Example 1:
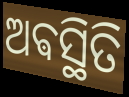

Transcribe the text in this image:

ଅଵସ୍ଥିତି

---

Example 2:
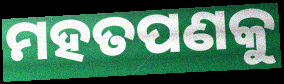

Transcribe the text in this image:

ମହତପଣକୁ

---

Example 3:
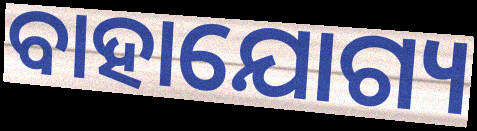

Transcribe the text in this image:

ବାହାଯୋଗ୍ୟ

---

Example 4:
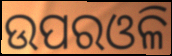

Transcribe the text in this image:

ଉପରଓଳି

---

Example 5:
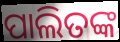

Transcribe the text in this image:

ପାଲିତଙ୍କ